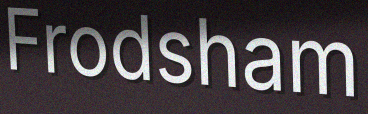
Frodsham